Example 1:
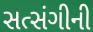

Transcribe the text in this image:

સત્સંગીની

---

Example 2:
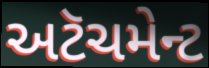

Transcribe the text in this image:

અટૅચમેન્ટ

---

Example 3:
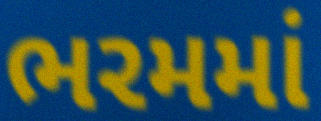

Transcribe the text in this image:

ભરમમાં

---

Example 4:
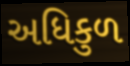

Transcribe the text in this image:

અધિકુળ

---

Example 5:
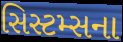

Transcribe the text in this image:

સિસ્ટમ્સના